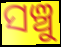
ସଞ୍ଚୁ